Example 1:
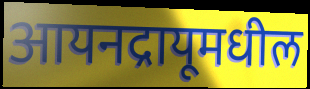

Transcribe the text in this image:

आयनद्रायूमधील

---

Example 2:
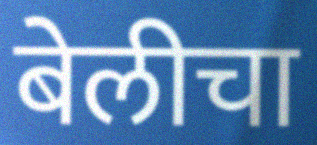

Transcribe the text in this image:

बेलीचा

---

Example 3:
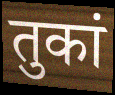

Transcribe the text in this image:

तुकां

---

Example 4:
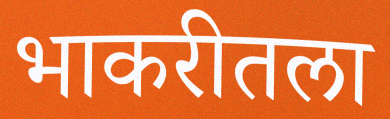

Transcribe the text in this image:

भाकरीतला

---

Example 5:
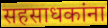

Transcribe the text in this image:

सहसाधकांना